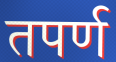
तपर्ण